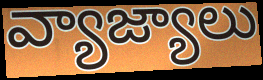
వ్యాజ్యాలు